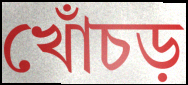
খোঁচড়